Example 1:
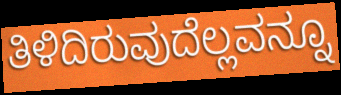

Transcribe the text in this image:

ತಿಳಿದಿರುವುದೆಲ್ಲವನ್ನೂ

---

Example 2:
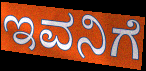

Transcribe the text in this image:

ಇವನಿಗೆ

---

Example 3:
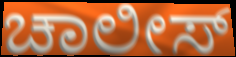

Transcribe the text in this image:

ಚಾಲೀಸ್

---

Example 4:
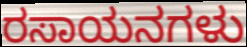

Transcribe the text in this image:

ರಸಾಯನಗಳು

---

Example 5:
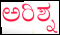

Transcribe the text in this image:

ಅರಿಶ್ನ